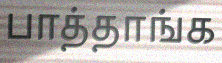
பாத்தாங்க